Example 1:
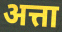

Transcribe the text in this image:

अत्ता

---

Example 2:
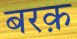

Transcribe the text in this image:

बरक़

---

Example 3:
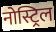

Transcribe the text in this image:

नोस्ट्रिल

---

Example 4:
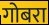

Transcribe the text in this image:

गोबरा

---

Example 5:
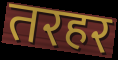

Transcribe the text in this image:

तरहर